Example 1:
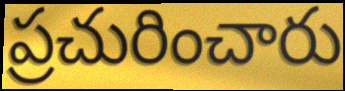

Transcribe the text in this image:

ప్రచురించారు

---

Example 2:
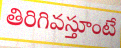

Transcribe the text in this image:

తిరిగివస్తూంటే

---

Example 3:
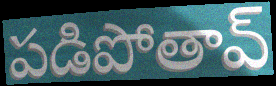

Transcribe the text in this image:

పడిపోతావ్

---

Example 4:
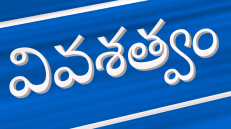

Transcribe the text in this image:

వివశత్వం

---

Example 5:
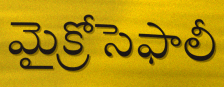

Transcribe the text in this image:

మైక్రోసెఫాలీ